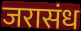
जरासंध